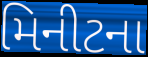
મિનીટના